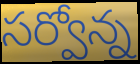
సర్వోన్న